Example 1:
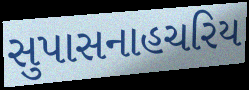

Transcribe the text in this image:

સુપાસનાહચરિય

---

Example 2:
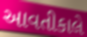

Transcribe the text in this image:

આવતીકાલે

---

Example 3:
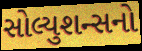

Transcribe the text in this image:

સોલ્યુશન્સનો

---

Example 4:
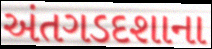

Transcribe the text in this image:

અંતગડદશાના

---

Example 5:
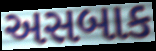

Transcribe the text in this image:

અસબાક